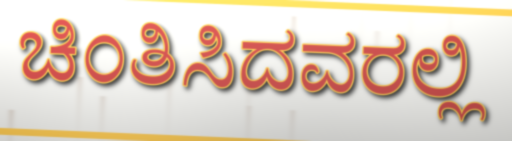
ಚಿಂತಿಸಿದವರಲ್ಲಿ